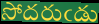
సోదరుఁడు